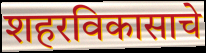
शहरविकासाचे